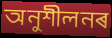
অনুশীলনৰ